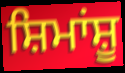
ਸ਼ਿਮਾਂਸ਼ੂ